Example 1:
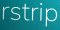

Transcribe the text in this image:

rstrip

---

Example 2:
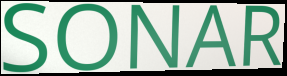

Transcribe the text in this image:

SONAR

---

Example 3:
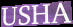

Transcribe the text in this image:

USHA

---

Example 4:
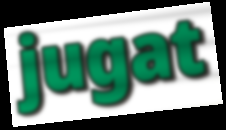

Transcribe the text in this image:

jugat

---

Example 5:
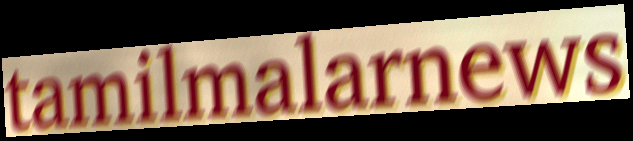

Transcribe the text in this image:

tamilmalarnews